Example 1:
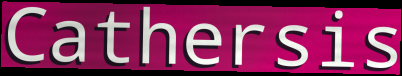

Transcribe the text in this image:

Cathersis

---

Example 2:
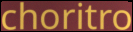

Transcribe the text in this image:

choritro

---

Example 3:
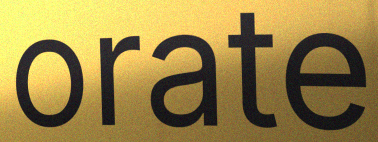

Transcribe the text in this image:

orate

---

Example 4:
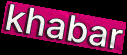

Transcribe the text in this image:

khabar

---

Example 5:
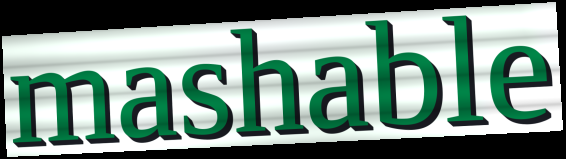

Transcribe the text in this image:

mashable